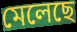
মেলেছে